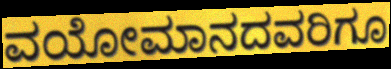
ವಯೋಮಾನದವರಿಗೂ